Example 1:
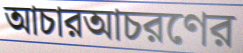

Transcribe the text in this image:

আচারআচরণের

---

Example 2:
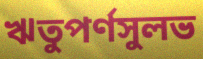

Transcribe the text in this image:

ঋতুপর্ণসুলভ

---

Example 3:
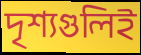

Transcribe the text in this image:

দৃশ্যগুলিই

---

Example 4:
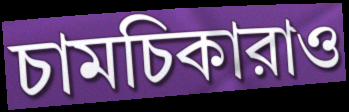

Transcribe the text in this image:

চামচিকারাও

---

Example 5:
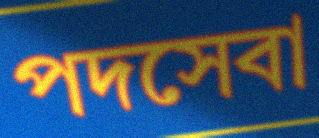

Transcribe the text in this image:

পদসেবা